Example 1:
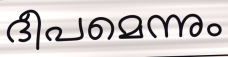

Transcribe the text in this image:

ദീപമെന്നും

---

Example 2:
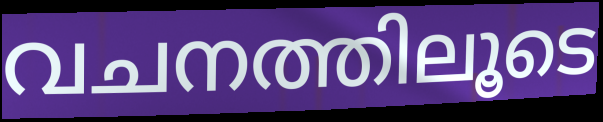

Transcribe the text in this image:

വചനത്തിലൂടെ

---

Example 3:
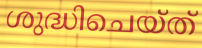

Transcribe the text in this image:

ശുദ്ധിചെയ്ത്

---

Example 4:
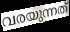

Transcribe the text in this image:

വരയുന്നത്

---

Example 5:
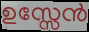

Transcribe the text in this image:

ഉസ്സേൻ